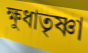
ক্ষুধাতৃষ্ণা